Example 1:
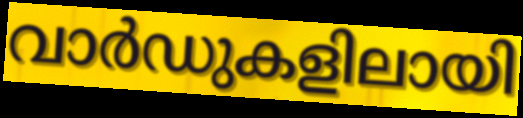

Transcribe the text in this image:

വാർഡുകളിലായി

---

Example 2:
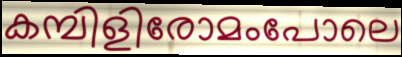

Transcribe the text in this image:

കമ്പിളിരോമംപോലെ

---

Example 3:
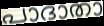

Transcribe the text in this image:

പാദാതാ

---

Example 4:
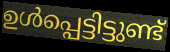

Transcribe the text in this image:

ഉൾപ്പെട്ടിട്ടുണ്ട്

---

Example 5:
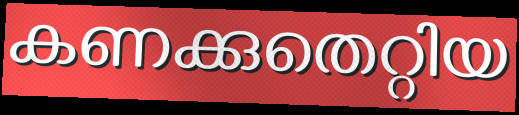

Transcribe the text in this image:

കണക്കുതെറ്റിയ